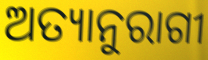
ଅତ୍ୟାନୁରାଗୀ